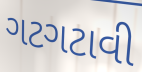
ગટગટાવી